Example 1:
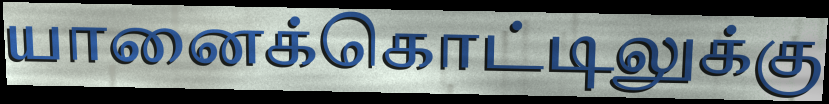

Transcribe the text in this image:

யானைக்கொட்டிலுக்கு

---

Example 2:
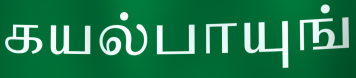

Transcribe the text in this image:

கயல்பாயுங்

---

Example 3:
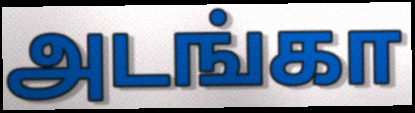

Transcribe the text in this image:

அடங்கா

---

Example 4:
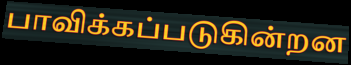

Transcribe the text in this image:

பாவிக்கப்படுகின்றன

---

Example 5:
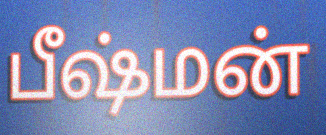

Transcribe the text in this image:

பீஷ்மன்